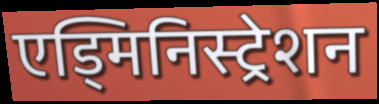
एड्मिनिस्ट्रेशन